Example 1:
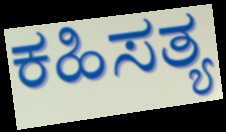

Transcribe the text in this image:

ಕಹಿಸತ್ಯ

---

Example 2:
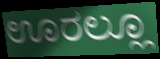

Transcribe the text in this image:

ಊರಲ್ಲೂ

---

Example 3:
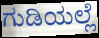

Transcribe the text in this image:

ಗುಡಿಯಲ್ಲೆ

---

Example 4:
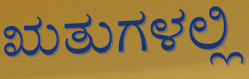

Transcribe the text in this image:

ಋತುಗಳಲ್ಲಿ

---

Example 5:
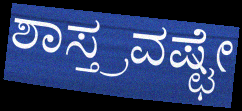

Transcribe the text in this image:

ಶಾಸ್ತ್ರವಷ್ಟೇ